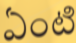
ఏంటి